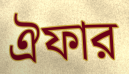
ঐফার